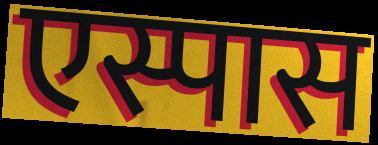
एस्पास